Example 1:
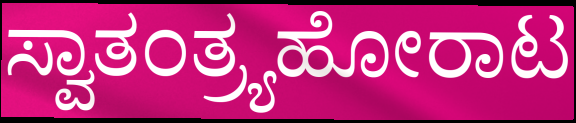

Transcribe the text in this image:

ಸ್ವಾತಂತ್ರ್ಯಹೋರಾಟ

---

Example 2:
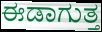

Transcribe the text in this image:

ಈಡಾಗುತ್ತ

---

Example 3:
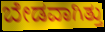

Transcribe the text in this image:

ಬೇಡವಾಗಿತ್ತು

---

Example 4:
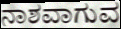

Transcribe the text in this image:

ನಾಶವಾಗುವ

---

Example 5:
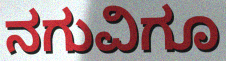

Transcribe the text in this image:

ನಗುವಿಗೂ